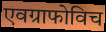
एवग्राफोविच